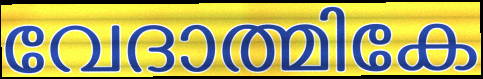
വേദാത്മികേ